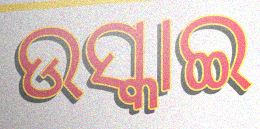
ଉସ୍କାଇ